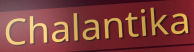
Chalantika